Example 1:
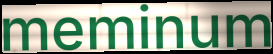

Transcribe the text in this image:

meminum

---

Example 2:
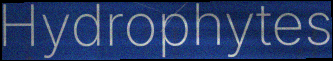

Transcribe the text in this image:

Hydrophytes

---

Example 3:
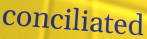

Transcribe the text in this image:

conciliated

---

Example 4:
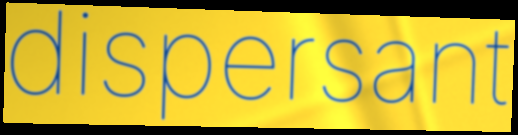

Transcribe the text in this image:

dispersant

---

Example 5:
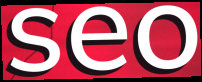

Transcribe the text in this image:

seo